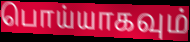
பொய்யாகவும்